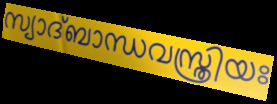
സ്യാദ്ബാന്ധവസ്ത്രിയഃ